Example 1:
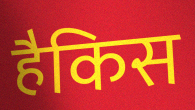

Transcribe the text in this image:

हैकिस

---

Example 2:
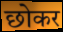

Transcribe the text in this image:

छोकर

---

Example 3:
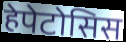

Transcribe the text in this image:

हेपेटोसिस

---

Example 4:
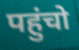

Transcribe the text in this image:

पहुंचो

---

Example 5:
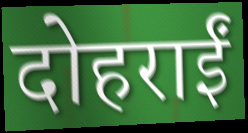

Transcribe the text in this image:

दोहराईं